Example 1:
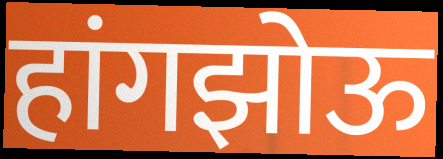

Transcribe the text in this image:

हांगझोऊ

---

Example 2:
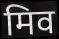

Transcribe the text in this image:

मिव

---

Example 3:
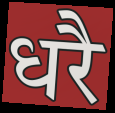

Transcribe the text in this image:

धरै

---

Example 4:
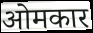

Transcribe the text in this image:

ओमकार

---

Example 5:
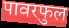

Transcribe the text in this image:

पावरफुल